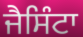
ਜੈਸਿੰਟਾ